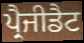
ਪ੍ਰੈਜੀਡੈਟ